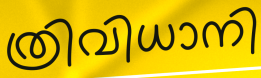
ത്രിവിധാനി